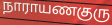
நாராயணகுரு